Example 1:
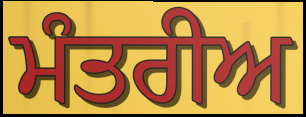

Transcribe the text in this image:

ਮੰਤਰੀਅ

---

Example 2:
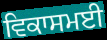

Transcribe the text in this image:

ਵਿਕਾਸਮਈ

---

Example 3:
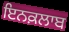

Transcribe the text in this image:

ਇਨਕ਼ਲਾਬ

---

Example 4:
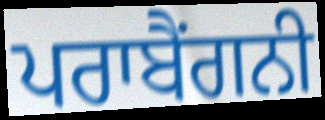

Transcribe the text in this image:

ਪਰਾਬੈਂਗਨੀ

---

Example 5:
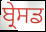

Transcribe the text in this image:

ਬ੍ਰੇਸਡ